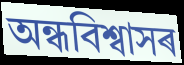
অন্ধবিশ্বাসৰ